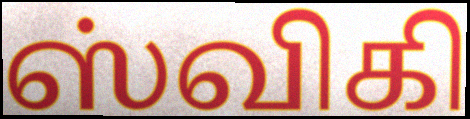
ஸ்விகி